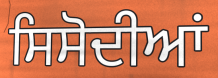
ਸਿਸੋਦੀਆਂ